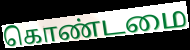
கொண்டமை